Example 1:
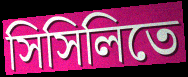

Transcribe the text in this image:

সিসিলিতে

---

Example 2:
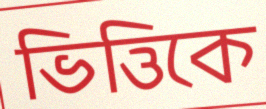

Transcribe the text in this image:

ভিত্তিকে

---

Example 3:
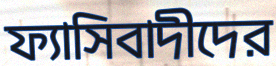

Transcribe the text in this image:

ফ্যাসিবাদীদের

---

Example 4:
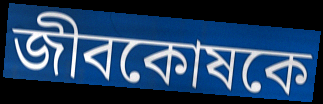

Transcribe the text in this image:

জীবকোষকে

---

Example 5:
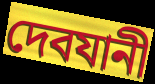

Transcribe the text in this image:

দেবযানী